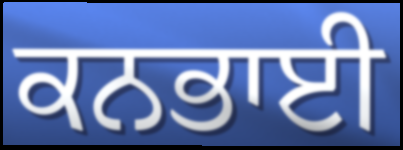
ਕਨਭਾਈ